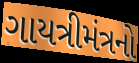
ગાયત્રીમંત્રનો